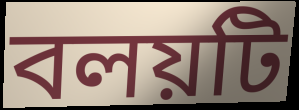
বলয়টি